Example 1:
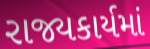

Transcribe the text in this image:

રાજ્યકાર્યમાં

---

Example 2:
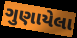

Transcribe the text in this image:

ગુણાયેલા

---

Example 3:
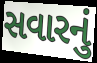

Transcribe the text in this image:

સવારનું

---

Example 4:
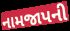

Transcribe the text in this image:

નામજાપની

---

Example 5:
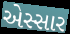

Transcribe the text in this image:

એસ્સાર